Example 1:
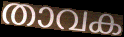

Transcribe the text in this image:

താവക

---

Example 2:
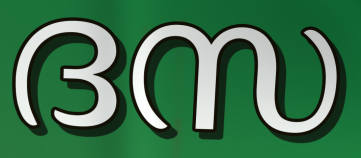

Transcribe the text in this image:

ദസ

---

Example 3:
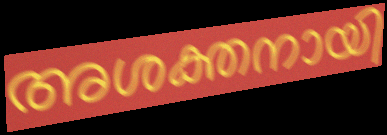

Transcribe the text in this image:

അശക്തനായി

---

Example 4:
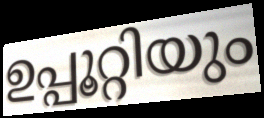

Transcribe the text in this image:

ഉപ്പൂറ്റിയും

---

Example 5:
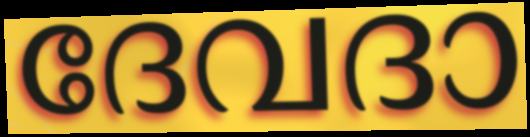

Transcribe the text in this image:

ദേവദാ